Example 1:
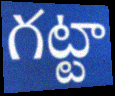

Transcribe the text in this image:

గట్టా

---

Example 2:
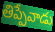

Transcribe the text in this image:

తిప్పేవాడు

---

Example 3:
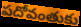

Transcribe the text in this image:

పదోవంతుకు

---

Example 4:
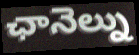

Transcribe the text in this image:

ఛానెల్ను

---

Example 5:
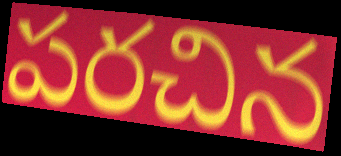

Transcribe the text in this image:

పరచిన